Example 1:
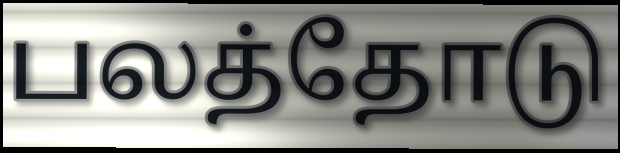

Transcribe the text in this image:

பலத்தோடு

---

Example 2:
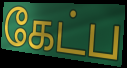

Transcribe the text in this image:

கேட்ப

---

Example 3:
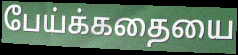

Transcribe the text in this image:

பேய்க்கதையை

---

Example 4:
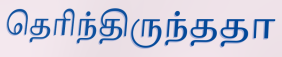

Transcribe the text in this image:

தெரிந்திருந்ததா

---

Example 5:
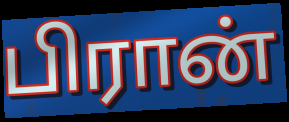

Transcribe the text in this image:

பிரான்